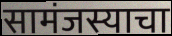
सामंजस्याचा